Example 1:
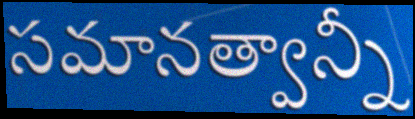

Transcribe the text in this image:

సమానత్వాన్నీ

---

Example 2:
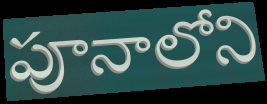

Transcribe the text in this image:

పూనాలోని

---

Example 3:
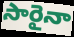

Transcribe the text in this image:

సారైనా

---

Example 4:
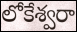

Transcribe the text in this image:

లోకేశ్వరా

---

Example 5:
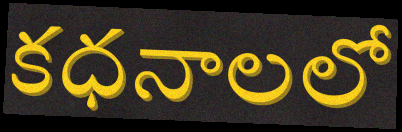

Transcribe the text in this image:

కధనాలలో